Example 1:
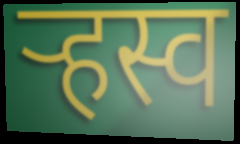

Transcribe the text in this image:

र्‍हस्व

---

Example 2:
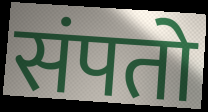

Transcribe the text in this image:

संपतो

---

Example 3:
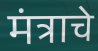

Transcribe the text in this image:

मंत्राचे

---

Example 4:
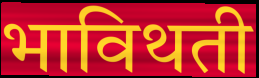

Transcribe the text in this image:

भाविथती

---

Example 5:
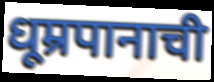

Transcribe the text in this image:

धूम्रपानाची